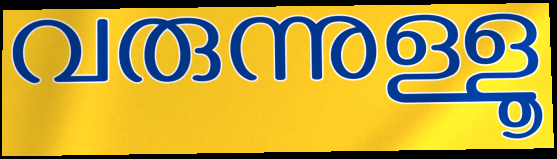
വരുന്നുള്ളൂ